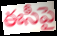
ఈసీపై